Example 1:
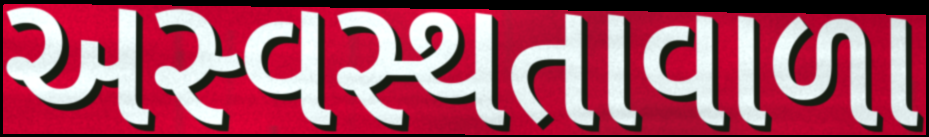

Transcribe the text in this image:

અસ્વસ્થતાવાળા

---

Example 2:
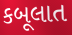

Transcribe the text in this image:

કબૂલાત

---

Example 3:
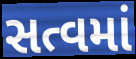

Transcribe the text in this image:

સત્વમાં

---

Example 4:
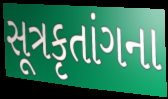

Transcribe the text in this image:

સૂત્રકૃતાંગના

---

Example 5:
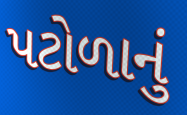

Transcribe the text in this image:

પટોળાનું